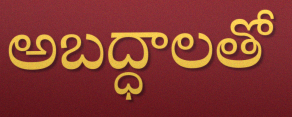
అబద్ధాలతో